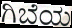
ಗಿಬೆಯ